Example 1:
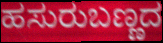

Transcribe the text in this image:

ಹಸುರುಬಣ್ಣದ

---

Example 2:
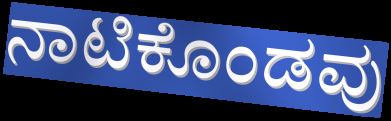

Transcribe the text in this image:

ನಾಟಿಕೊಂಡವು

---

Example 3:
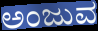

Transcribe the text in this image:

ಅಂಜುವ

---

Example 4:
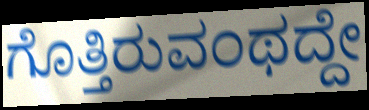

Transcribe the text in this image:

ಗೊತ್ತಿರುವಂಥದ್ದೇ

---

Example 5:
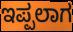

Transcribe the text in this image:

ಇಪ್ಪಲಾಗ